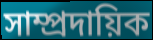
সাম্প্রদায়িক